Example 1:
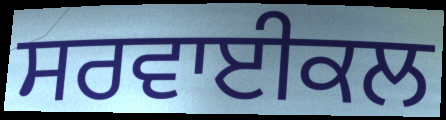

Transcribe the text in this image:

ਸਰਵਾਈਕਲ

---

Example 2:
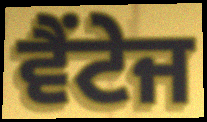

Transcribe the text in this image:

ਵੈਂਟੇਜ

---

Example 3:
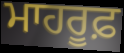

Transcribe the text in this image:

ਮਾਹਰੂਫ਼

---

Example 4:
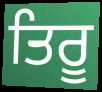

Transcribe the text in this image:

ਤਿਰੂ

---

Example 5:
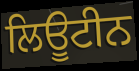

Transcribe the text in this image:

ਲਿਊਟੀਨ